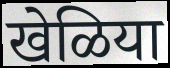
खेळिया